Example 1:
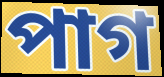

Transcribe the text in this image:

পাগ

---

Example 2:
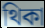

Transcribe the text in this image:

থিকা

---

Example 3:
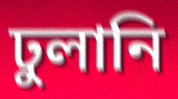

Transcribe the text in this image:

ঢুলানি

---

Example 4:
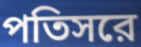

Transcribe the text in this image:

পতিসরে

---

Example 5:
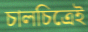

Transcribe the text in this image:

চালচিত্রেই